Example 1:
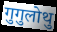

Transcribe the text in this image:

गुगुलोथु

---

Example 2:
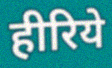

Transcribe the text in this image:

हीरिये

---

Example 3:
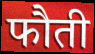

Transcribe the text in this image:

फौती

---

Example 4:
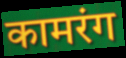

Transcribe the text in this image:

कामरंग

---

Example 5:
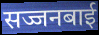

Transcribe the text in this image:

सज्जनबाई